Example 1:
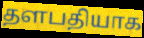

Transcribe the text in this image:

தளபதியாக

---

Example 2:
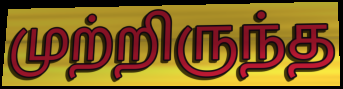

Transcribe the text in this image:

முற்றிருந்த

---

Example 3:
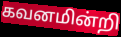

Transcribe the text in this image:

கவனமின்றி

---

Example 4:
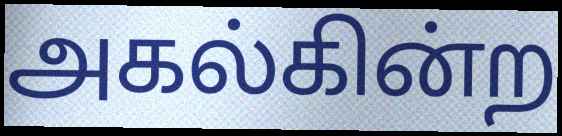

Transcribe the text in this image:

அகல்கின்ற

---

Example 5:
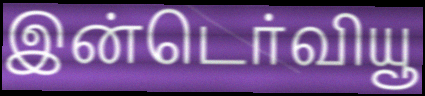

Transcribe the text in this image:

இன்டெர்வியூ